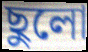
ছুলো